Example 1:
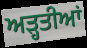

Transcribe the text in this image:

ਅੜ੍ਹਤੀਆਂ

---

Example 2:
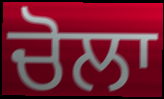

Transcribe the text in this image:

ਚੋਲਾ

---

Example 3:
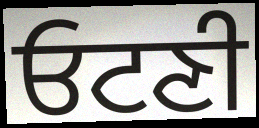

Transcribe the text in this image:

ਓਟਣੀ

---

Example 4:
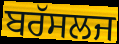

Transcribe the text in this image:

ਬਰੱਸਲਜ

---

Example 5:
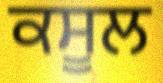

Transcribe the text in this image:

ਕਸੂਲ